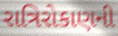
રાત્રિરોકાણની